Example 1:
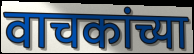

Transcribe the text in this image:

वाचकांच्या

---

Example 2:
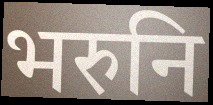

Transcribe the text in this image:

भरुनि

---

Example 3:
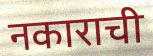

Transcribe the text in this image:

नकाराची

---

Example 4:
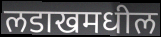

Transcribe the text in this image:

लडाखमधील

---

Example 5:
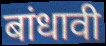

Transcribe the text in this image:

बांधावी